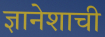
ज्ञानेशाची